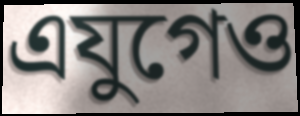
এযুগেও